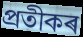
প্ৰতীকৰ